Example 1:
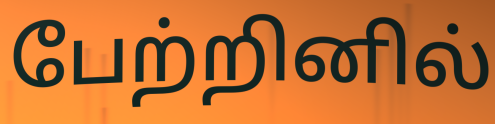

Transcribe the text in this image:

பேற்றினில்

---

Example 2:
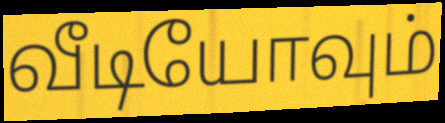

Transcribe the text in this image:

வீடியோவும்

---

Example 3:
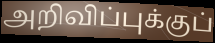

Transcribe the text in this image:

அறிவிப்புக்குப்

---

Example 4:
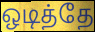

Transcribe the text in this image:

ஒடித்தே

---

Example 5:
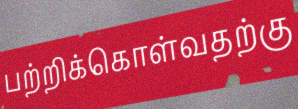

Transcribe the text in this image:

பற்றிக்கொள்வதற்கு